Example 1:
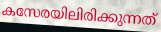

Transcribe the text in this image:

കസേരയിലിരിക്കുന്നത്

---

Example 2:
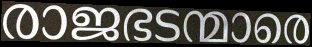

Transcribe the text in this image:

രാജഭടന്മാരെ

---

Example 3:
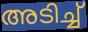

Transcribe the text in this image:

അടിച്ച്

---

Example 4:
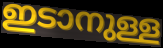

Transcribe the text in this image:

ഇടാനുള്ള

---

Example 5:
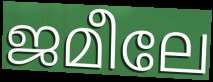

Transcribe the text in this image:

ജമീലേ